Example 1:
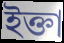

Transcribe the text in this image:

ইক্তা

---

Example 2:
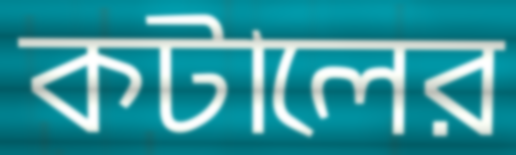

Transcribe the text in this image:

কটালের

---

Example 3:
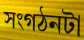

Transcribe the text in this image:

সংগঠনটা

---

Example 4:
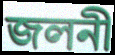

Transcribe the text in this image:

জলনী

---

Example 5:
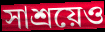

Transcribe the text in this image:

সাশ্রয়েও